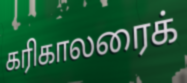
கரிகாலரைக்